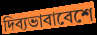
দিব্যভাবাবেশে